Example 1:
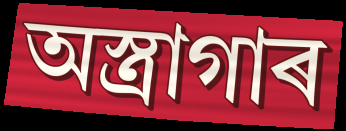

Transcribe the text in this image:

অস্ত্ৰাগাৰ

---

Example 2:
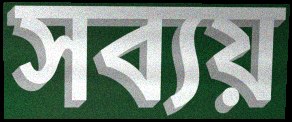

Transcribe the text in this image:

সব্যয়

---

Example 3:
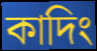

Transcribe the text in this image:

কাদিং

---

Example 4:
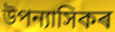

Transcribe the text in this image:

উপন্যাসিকৰ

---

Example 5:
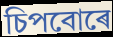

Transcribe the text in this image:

চিপবোৰে